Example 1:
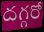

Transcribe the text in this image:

దగ్గరో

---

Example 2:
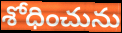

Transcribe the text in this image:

శోధించును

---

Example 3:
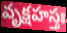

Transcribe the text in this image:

వృక్షహస్తః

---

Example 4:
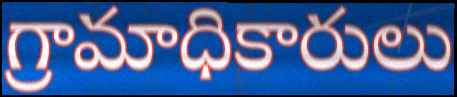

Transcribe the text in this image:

గ్రామాధికారులు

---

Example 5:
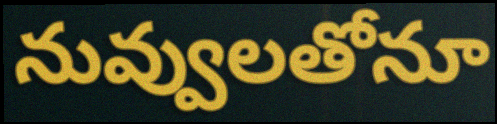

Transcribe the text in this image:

నువ్వులతోనూ